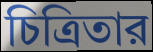
চিত্রিতার